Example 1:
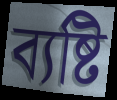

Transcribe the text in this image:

ব্যষ্টি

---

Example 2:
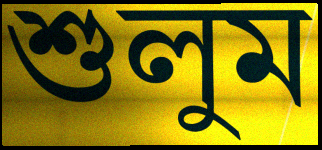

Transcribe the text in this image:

শুলুম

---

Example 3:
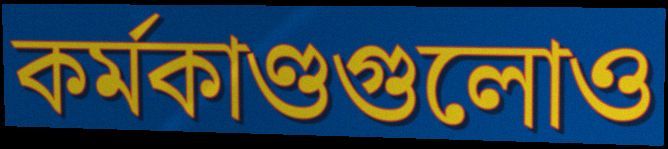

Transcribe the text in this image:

কর্মকাণ্ডগুলোও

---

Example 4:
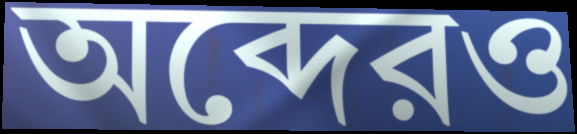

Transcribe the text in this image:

অব্দেরও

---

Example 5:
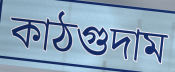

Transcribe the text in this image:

কাঠগুদাম